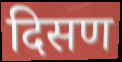
दिसण